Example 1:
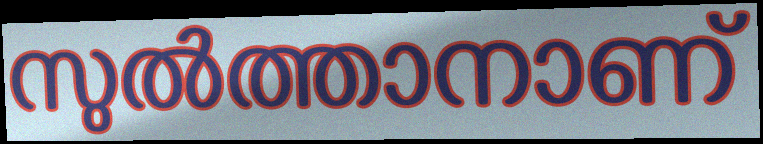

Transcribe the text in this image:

സുൽത്താനാണ്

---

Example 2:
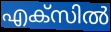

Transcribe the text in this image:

എക്സിൽ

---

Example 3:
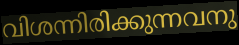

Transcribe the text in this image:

വിശന്നിരിക്കുന്നവനു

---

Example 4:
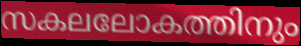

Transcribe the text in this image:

സകലലോകത്തിനും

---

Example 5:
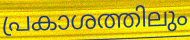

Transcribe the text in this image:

പ്രകാശത്തിലും